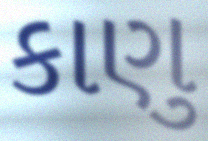
કાણુ